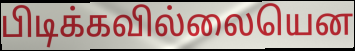
பிடிக்கவில்லையென